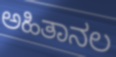
ಅಹಿತಾನಲ